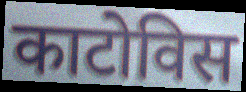
काटोविस